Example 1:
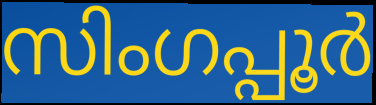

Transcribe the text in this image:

സിംഗപ്പൂർ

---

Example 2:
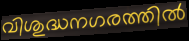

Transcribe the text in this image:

വിശുദ്ധനഗരത്തിൽ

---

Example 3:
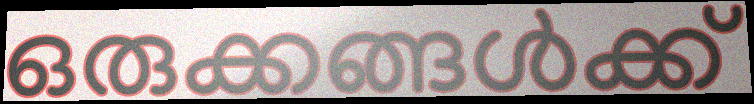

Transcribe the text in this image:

ഒരുക്കങ്ങൾക്ക്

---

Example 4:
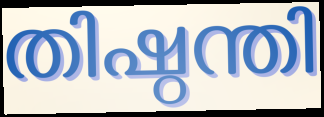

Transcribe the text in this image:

തിഷ്ഠന്തി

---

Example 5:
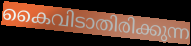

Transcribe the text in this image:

കൈവിടാതിരിക്കുന്ന